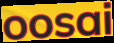
oosai